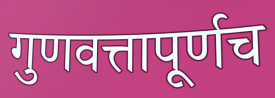
गुणवत्तापूर्णच